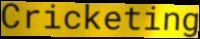
Cricketing